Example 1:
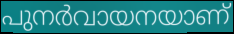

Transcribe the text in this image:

പുനർവായനയാണ്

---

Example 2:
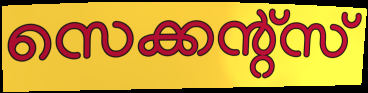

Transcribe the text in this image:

സെക്കന്റ്സ്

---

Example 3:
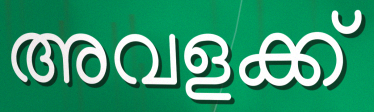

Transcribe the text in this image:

അവളക്ക്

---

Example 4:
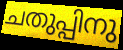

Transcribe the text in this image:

ചതുപ്പിനു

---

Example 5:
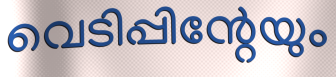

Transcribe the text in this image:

വെടിപ്പിന്റേയും